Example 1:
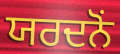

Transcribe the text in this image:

ਯਰਦਨੋਂ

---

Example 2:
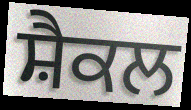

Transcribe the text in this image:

ਸ਼ੈਕਲ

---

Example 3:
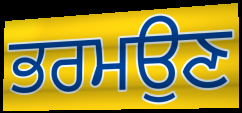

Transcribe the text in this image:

ਭਰਮਉਣ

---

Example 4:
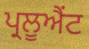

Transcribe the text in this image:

ਪ੍ਰਲੂਐਂਟ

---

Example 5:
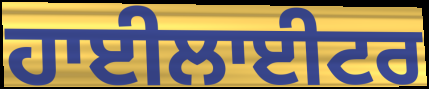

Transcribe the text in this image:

ਹਾਈਲਾਈਟਰ